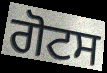
ਗੋਟਸ